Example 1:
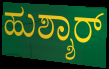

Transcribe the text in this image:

ಹುಶ್ಶಾರ್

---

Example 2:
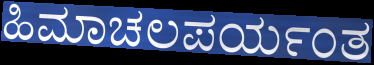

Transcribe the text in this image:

ಹಿಮಾಚಲಪರ್ಯಂತ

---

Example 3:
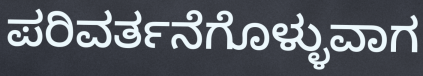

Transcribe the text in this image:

ಪರಿವರ್ತನೆಗೊಳ್ಳುವಾಗ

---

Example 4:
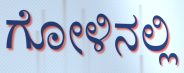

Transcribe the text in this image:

ಗೋಳಿನಲ್ಲಿ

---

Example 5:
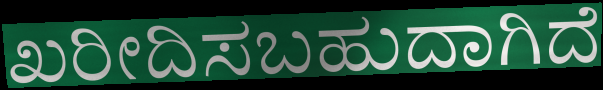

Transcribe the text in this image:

ಖರೀದಿಸಬಹುದಾಗಿದೆ